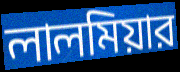
লালমিয়ার